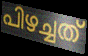
പിഴച്ചത്